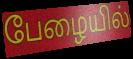
பேழையில்